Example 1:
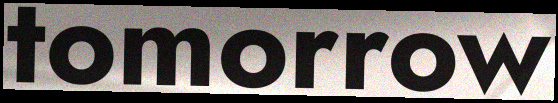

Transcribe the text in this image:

tomorrow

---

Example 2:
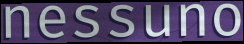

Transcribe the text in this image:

nessuno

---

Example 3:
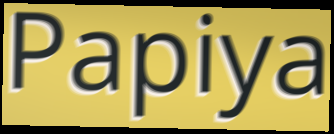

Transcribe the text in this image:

Papiya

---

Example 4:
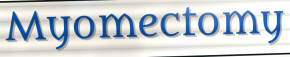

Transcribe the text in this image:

Myomectomy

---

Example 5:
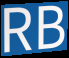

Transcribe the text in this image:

RB